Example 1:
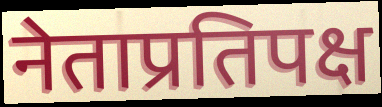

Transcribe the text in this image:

नेताप्रतिपक्ष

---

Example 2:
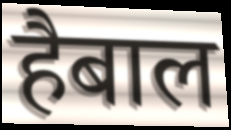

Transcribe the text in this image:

हैबाल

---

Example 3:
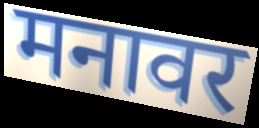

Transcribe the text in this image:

मनावर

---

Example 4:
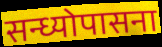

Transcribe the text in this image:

सन्ध्योपासना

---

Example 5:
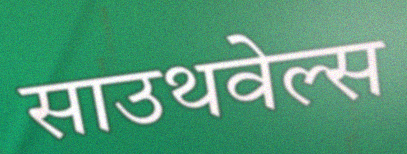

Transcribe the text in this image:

साउथवेल्स